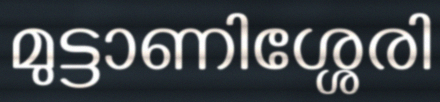
മുട്ടാണിശ്ശേരി